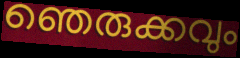
ഞെരുക്കവും